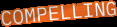
COMPELLING